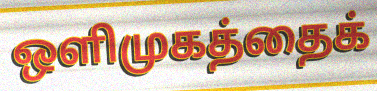
ஒளிமுகத்தைக்